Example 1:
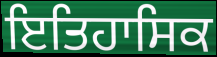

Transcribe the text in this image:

ਇਤਿਹਾਸਿਕ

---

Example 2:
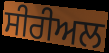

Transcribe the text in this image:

ਸੀਰੀਅਲ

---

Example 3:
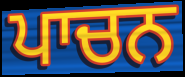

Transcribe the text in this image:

ਪਾਚਨ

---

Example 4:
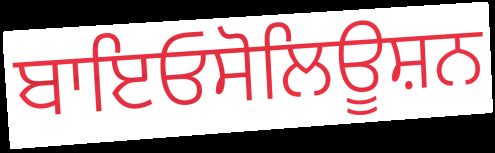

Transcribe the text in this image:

ਬਾਇਓਸੋਲਿਊਸ਼ਨ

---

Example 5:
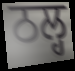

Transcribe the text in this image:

ਠਲ੍ਹ